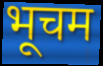
भूचम